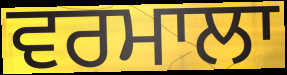
ਵਰਮਾਲਾ